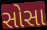
સોસા